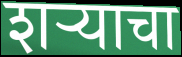
शर्‍याचा